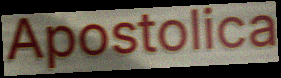
Apostolica